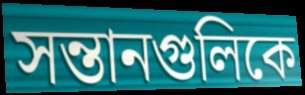
সন্তানগুলিকে